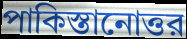
পাকিস্তানোত্তর